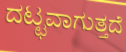
ದಟ್ಟವಾಗುತ್ತದೆ